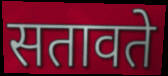
सतावते